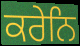
ਕਰੇਨਿ